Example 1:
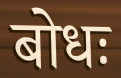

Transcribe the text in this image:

बोधः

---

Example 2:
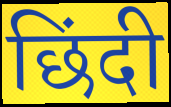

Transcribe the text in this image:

छिंदी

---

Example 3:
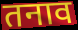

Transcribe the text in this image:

तनाव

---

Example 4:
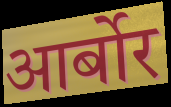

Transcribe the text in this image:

आर्बोर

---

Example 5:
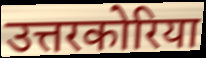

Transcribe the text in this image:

उत्तरकोरिया